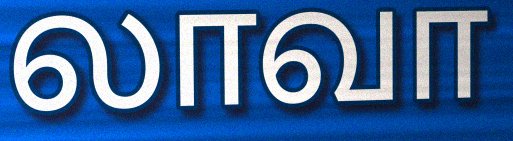
லாவா